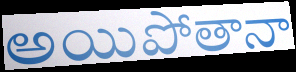
అయిపోతానా